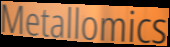
Metallomics